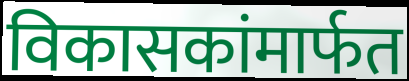
विकासकांमार्फत